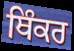
ਥਿੰਕਰ